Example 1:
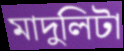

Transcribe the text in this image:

মাদুলিটা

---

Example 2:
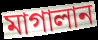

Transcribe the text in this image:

মাগালান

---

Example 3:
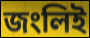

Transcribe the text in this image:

জংলিই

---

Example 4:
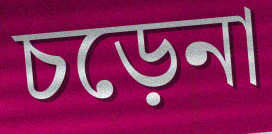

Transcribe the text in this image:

চড়েনা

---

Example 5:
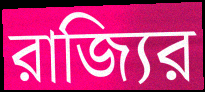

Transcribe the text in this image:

রাজ্যির